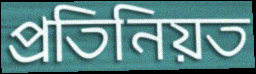
প্রতিনিয়ত